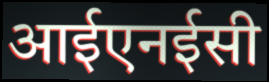
आईएनईसी